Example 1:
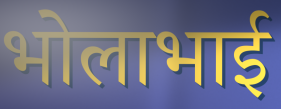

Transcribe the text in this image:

भोलाभाई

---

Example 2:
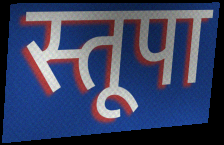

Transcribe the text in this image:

स्तूपा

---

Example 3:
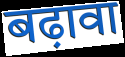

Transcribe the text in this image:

बढ़ावा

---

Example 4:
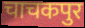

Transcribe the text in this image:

चाचकपुर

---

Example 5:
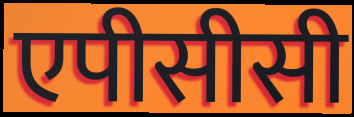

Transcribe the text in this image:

एपीसीसी